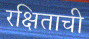
रक्षिताची